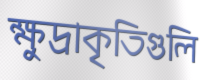
ক্ষুদ্রাকৃতিগুলি